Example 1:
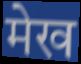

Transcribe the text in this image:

मेख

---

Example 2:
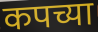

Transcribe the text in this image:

कपच्या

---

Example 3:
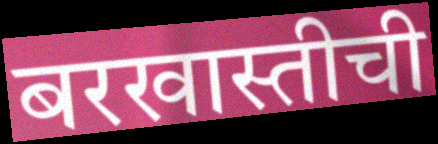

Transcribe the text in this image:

बरखास्तीची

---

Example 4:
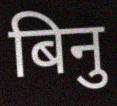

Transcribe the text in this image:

बिनु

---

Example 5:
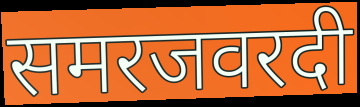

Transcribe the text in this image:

समरजवरदी